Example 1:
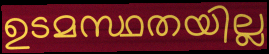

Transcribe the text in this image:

ഉടമസ്ഥതയില്ല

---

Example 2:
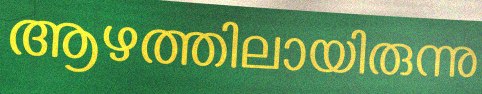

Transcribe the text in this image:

ആഴത്തിലായിരുന്നു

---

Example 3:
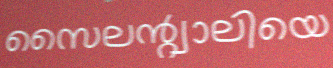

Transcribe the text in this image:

സൈലന്റ്വാലിയെ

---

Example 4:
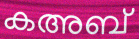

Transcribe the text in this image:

കഅബ്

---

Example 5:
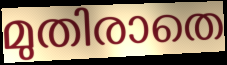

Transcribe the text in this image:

മുതിരാതെ